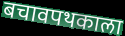
बचावपथकाला